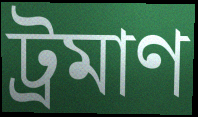
ট্রমাণ